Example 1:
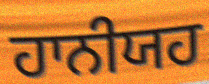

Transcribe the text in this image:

ਹਾਨੀਯਹ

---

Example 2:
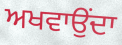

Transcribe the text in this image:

ਅਖਵਾਉਂਦਾ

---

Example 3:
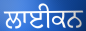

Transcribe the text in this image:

ਲਾਈਕਨ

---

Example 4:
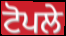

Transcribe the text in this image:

ਟੋਪਲੇ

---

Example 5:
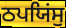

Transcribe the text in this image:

ਠਪਯਿਂਸੁ